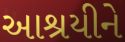
આશ્રયીને